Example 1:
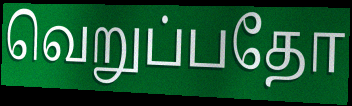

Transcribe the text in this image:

வெறுப்பதோ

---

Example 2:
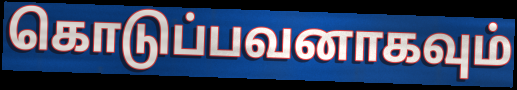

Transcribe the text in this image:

கொடுப்பவனாகவும்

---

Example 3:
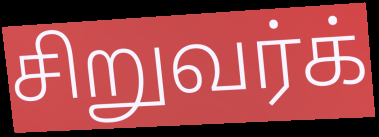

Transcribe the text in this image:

சிறுவர்க்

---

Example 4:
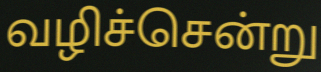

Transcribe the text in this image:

வழிச்சென்று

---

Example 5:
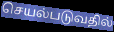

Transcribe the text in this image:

செயல்படுவதில்